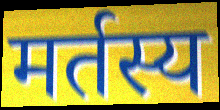
मर्तस्य